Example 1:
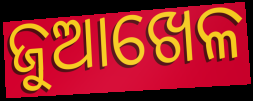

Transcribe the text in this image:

ଜୁଆଖେଳ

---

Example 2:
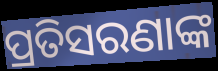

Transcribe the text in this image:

ପ୍ରତିସରଣାଙ୍କ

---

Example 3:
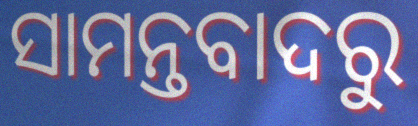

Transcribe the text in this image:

ସାମନ୍ତବାଦରୁ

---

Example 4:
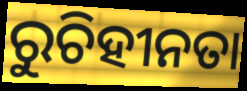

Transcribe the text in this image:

ରୁଚିହୀନତା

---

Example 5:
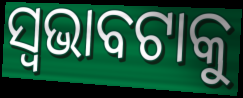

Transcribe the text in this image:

ସ୍ଵଭାବଟାକୁ